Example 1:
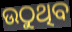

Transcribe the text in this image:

ଉଠୁଥିବ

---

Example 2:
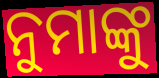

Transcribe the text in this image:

ନୁମାଙ୍କୁ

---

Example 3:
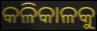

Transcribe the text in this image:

କଳିକାଳକୁ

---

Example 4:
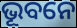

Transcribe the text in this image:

ଭୂବନେ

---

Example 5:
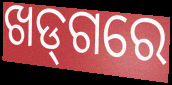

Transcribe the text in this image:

ଖଡ୍‌ଗରେ